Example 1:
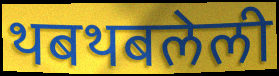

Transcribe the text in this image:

थबथबलेली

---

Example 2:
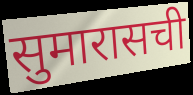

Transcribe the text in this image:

सुमारासची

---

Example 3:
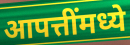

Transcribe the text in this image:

आपत्तींमध्ये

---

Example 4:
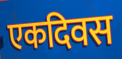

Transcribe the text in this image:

एकदिवस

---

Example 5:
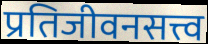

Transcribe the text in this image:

प्रतिजीवनसत्त्व